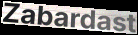
Zabardast